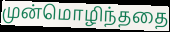
முன்மொழிந்ததை